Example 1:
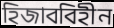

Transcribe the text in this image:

হিজাববিহীন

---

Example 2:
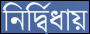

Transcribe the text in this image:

নির্দ্বিধায়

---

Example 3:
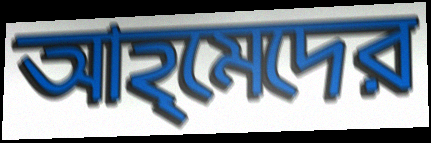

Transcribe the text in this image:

আহ্‌মেদের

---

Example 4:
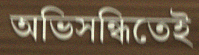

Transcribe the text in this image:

অভিসন্ধিতেই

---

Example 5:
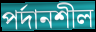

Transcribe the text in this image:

পর্দানশীল